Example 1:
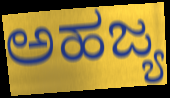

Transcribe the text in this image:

ಅಹಜ್ಯ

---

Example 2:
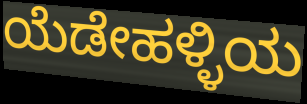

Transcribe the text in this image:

ಯೆಡೇಹಳ್ಳಿಯ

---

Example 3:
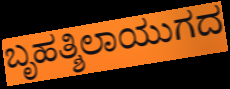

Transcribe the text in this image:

ಬೃಹತ್ಶಿಲಾಯುಗದ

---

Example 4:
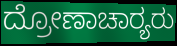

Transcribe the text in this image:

ದ್ರೋಣಾಚಾರ‍್ಯರು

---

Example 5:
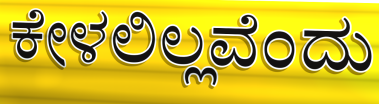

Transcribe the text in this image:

ಕೇಳಲಿಲ್ಲವೆಂದು